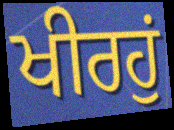
ਖੀਰਹੁਂ